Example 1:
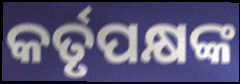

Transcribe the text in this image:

କର୍ତୃପକ୍ଷଙ୍କ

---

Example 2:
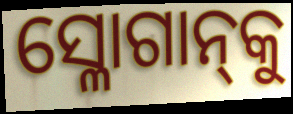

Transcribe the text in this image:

ସ୍ଳୋଗାନ୍‌କୁ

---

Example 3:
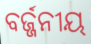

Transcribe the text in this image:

ବର୍ଜ୍ଜନୀୟ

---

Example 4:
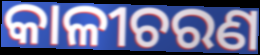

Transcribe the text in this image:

କାଳୀଚରଣ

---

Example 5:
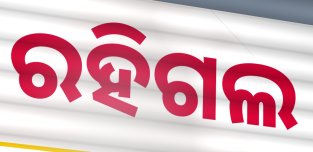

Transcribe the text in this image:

ରହିଗଲ